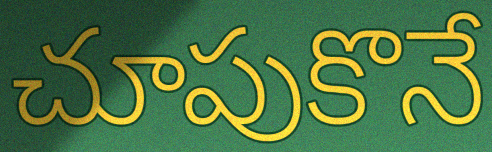
చూపుకొనే